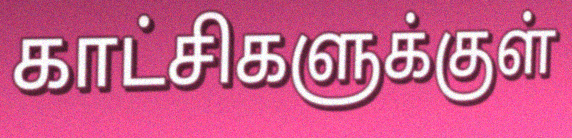
காட்சிகளுக்குள்